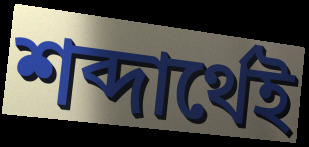
শব্দার্থেই